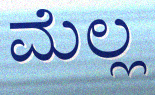
ಮೆಲ್ಲ